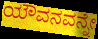
ಯೌವನವನ್ನೇ